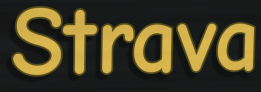
Strava